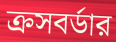
ক্রসবর্ডার